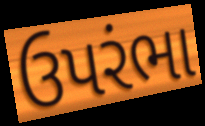
ઉપરંભા